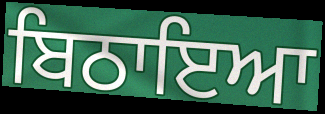
ਬਿਠਾਇਆ